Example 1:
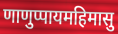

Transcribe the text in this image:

णाणुप्पायमहिमासु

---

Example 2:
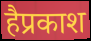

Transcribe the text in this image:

हैप्रकाश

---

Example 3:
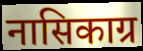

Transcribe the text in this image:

नासिकाग्र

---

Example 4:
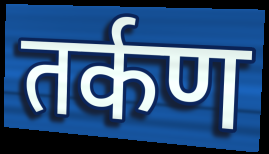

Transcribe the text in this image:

तर्कण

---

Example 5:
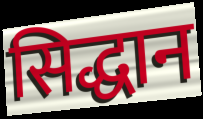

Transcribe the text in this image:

सिद्धान